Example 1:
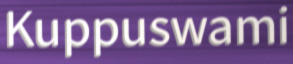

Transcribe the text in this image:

Kuppuswami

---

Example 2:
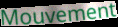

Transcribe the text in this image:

Mouvement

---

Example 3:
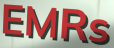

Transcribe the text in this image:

EMRs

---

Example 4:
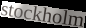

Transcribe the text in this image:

stockholm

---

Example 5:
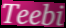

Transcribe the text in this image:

Teebi